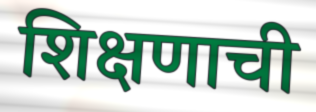
शिक्षणाची